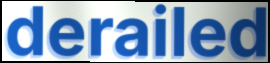
derailed